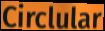
Circlular